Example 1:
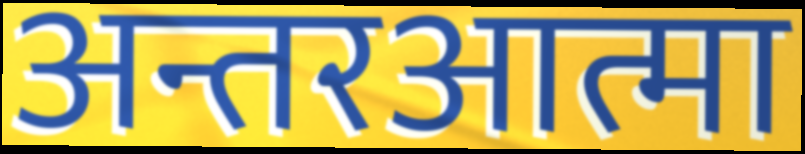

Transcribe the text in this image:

अन्तरआत्मा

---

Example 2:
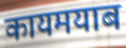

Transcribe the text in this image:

कायमयाब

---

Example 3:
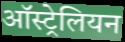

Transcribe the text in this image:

ऑस्ट्रेलियन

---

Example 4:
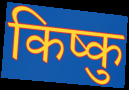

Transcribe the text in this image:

किष्कु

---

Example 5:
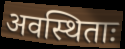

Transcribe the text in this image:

अवस्थिताः